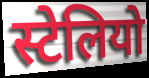
स्टेलियो